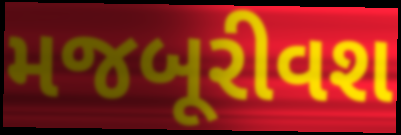
મજબૂરીવશ